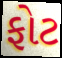
ફોટ